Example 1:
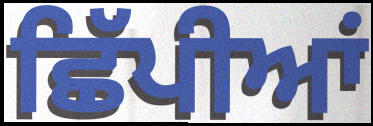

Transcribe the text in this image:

ਛਿੱਪੀਆਂ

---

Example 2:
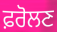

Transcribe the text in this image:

ਫ਼ਰੋਲਣ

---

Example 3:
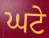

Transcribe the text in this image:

ਘਟੇ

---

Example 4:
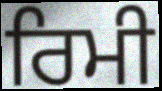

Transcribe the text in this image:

ਰਿਮੀ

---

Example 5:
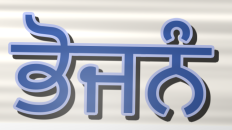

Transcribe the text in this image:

ਭੋਜਨੰ